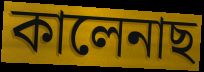
কালেনাছ